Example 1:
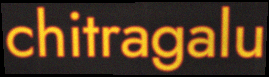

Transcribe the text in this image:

chitragalu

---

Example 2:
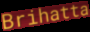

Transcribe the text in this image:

Brihatta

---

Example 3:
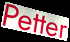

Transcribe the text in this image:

Petter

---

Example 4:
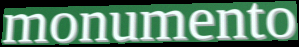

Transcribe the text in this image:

monumento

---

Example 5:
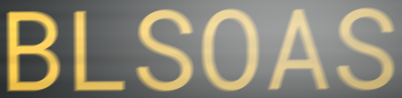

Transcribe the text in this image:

BLSOAS